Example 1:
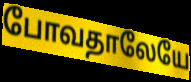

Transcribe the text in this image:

போவதாலேயே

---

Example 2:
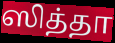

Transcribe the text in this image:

ஸித்தா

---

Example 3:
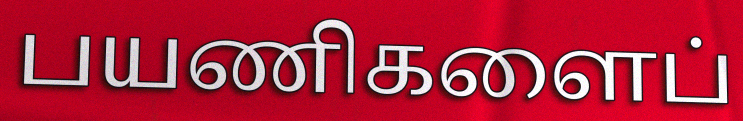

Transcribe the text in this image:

பயணிகளைப்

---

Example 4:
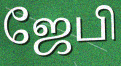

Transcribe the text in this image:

ஜேபி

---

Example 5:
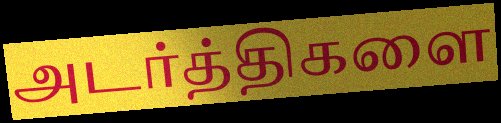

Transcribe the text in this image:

அடர்த்திகளை